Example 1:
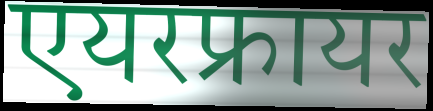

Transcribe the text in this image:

एयरफ्रायर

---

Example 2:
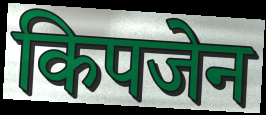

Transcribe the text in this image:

किपजेन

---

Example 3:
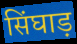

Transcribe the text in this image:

सिंघाड़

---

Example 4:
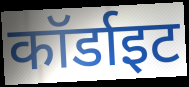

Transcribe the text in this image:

कॉर्डाइट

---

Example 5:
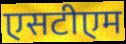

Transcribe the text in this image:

एसटीएम